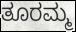
ತೂರಮ್ಮ